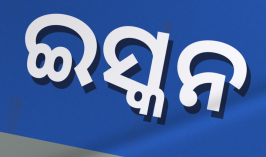
ଇସ୍କନ